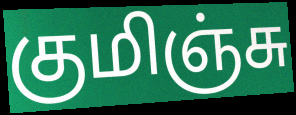
குமிஞ்சு